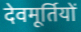
देवमूर्तियों